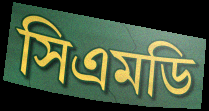
সিএমডি